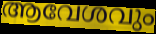
ആവേശവും